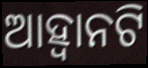
ଆହ୍ଵାନଟି